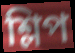
শ্লিপ